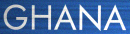
GHANA